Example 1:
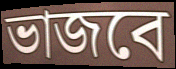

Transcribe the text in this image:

ভাজবে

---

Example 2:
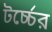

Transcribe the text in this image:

টর্চ্চের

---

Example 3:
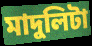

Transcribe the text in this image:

মাদুলিটা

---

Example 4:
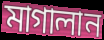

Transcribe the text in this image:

মাগালান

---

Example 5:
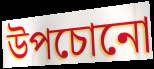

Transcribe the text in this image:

উপচোনো